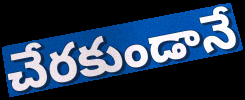
చేరకుండానే